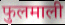
फुलमाली